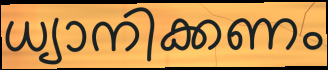
ധ്യാനിക്കണം